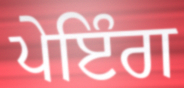
ਪੇਇੰਗ